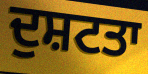
ਦੁਸ਼ਟਤਾ